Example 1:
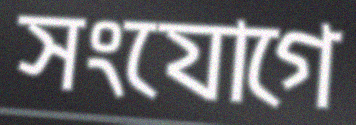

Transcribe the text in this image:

সংযোগে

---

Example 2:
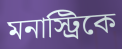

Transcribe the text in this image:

মনাস্ট্রিকে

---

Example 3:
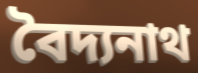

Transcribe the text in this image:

বৈদ্যনাথ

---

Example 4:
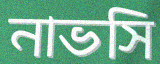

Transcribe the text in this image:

নাভসি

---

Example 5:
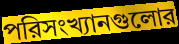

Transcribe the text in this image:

পরিসংখ্যানগুলোর